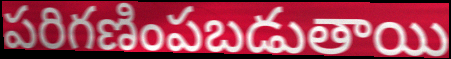
పరిగణింపబడుతాయి